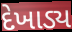
દેખાડ્ય